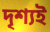
দৃশ্যই